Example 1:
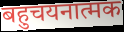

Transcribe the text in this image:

बहुचयनात्मक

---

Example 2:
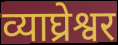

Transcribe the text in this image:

व्याघ्रेश्वर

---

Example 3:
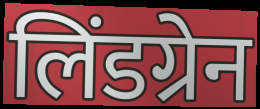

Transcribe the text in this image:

लिंडग्रेन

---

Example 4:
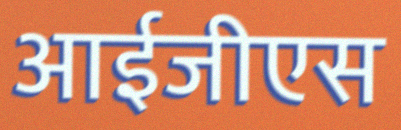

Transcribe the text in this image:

आईजीएस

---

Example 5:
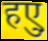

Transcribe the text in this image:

हएु